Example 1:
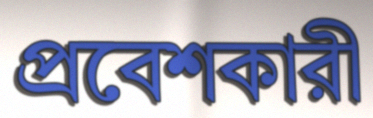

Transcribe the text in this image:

প্রবেশকারী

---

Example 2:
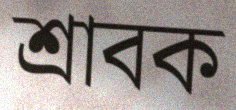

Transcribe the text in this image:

শ্রাবক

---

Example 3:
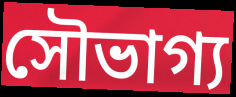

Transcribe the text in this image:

সৌভাগ্য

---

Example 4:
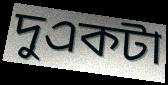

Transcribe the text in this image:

দুএকটা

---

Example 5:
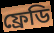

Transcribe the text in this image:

ফ্রেডি